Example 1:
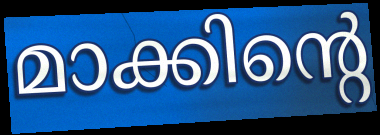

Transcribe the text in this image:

മാക്കിന്റെ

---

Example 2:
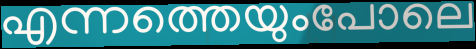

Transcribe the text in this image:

എന്നത്തെയുംപോലെ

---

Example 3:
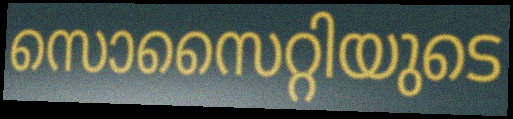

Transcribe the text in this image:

സൊസൈറ്റിയുടെ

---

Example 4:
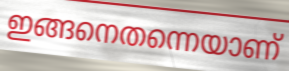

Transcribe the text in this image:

ഇങ്ങനെതന്നെയാണ്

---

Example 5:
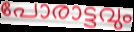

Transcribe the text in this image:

പോരാട്ടവും